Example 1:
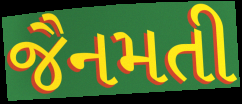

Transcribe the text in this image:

જૈનમતી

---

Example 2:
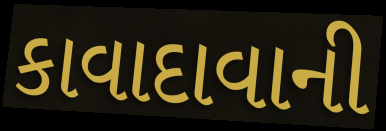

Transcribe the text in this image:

કાવાદાવાની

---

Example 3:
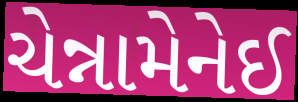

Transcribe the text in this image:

ચેન્નામેનેઈ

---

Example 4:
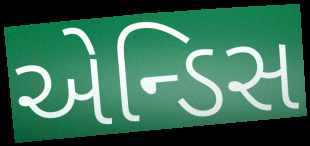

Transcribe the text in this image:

એન્ડિસ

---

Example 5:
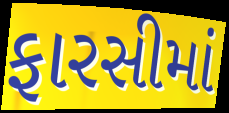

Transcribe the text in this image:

ફારસીમાં